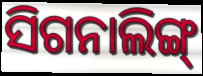
ସିଗନାଲିଙ୍ଗ୍